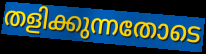
തളിക്കുന്നതോടെ